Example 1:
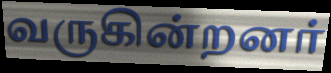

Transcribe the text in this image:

வருகின்றனர்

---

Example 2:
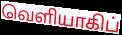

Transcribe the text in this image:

வெளியாகிப்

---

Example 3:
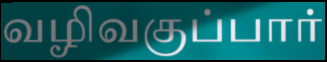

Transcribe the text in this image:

வழிவகுப்பார்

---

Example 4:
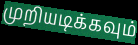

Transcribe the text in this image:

முறியடிக்கவும்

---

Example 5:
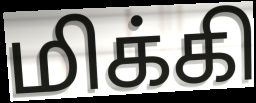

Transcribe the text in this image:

மிக்கி